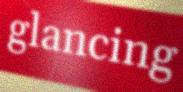
glancing